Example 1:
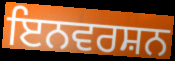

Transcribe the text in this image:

ਇਨਵਰਸ਼ਨ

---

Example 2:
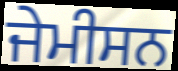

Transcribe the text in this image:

ਜੇਮੀਸਨ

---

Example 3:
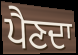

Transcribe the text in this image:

ਪੈਣਦਾ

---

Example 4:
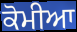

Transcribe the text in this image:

ਕੋਮੀਆ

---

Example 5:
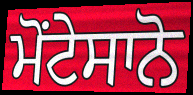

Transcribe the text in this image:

ਮੋਂਟੇਸਾਨੋ